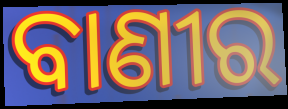
ବାଣୀର